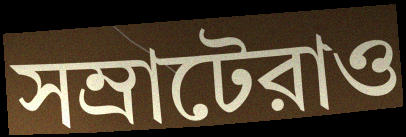
সম্রাটেরাও